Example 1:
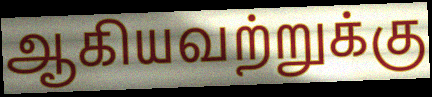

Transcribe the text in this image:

ஆகியவற்றுக்கு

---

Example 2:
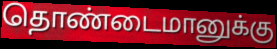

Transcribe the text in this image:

தொண்டைமானுக்கு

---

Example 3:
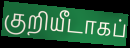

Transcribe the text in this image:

குறியீடாகப்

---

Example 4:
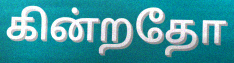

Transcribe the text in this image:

கின்றதோ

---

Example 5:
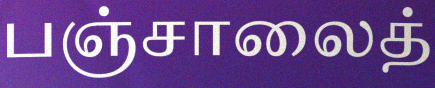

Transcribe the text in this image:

பஞ்சாலைத்